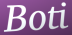
Boti